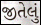
જીતેલું